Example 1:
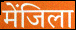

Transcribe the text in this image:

मेंजिला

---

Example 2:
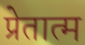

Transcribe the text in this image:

प्रेतात्म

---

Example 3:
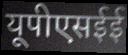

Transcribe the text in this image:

यूपीएसईई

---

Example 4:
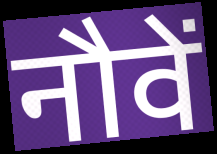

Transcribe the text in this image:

नौवें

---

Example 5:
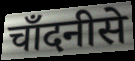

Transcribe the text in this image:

चाँदनीसे